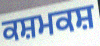
ਕਸ਼ਮਕਸ਼